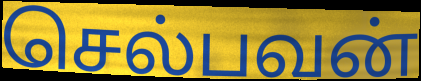
செல்பவன்